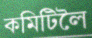
কমিটিলৈ